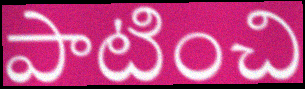
పాటించి